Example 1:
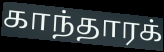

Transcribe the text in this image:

காந்தாரக்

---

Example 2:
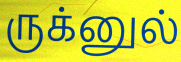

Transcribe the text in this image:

ருக்னுல்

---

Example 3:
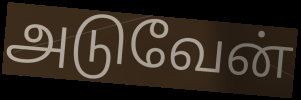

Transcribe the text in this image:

அடுவேன்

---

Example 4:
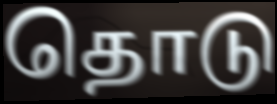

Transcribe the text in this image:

தொடு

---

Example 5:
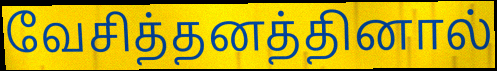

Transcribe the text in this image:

வேசித்தனத்தினால்